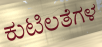
ಕುಟಿಲತೆಗಳ